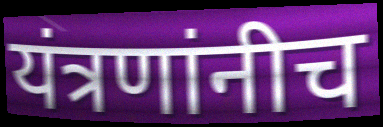
यंत्रणांनीच